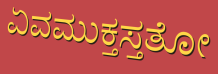
ಏವಮುಕ್ತಸ್ತತೋ